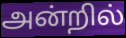
அன்றில்